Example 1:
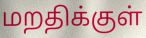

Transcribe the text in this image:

மறதிக்குள்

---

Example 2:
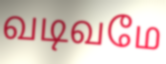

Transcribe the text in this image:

வடிவமே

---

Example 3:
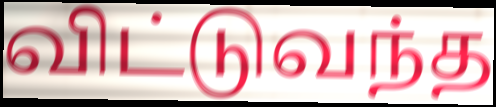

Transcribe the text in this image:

விட்டுவந்த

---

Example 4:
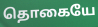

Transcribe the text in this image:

தொகையே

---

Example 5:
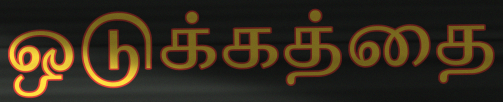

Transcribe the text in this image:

ஒடுக்கத்தை